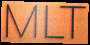
MLT